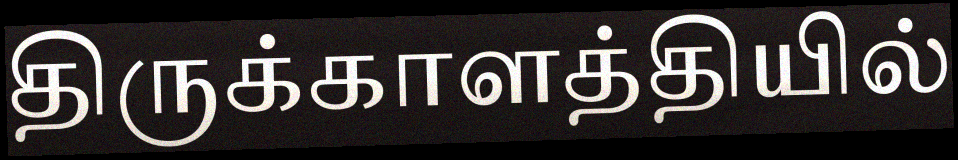
திருக்காளத்தியில்